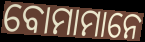
ବୋମାମାନେ